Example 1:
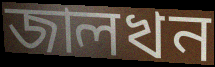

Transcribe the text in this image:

জালখন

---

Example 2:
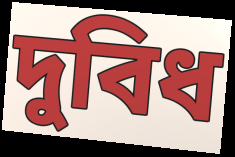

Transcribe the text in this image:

দুবিধ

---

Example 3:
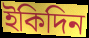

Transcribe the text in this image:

ইকিদিন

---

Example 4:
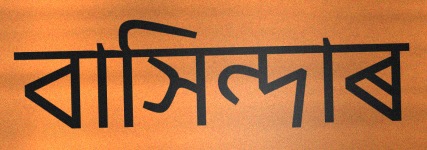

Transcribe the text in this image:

বাসিন্দাৰ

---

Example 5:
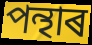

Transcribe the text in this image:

পন্থাৰ